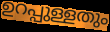
ഉറപ്പുള്ളതും